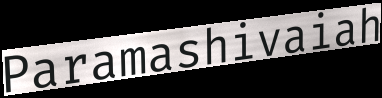
Paramashivaiah